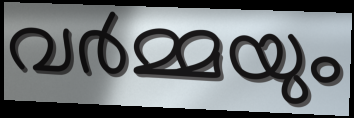
വർമ്മയും